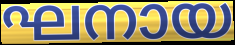
ഘനായ